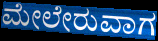
ಮೇಲೇರುವಾಗ